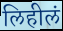
लिहीलं